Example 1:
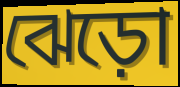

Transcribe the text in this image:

ঝেড়ো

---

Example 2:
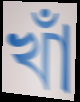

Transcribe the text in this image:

খাঁ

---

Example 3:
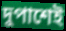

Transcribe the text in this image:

দুপাশেই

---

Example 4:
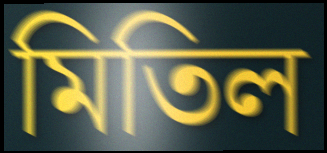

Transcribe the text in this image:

মিতিল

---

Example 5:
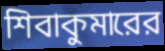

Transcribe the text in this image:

শিবাকুমারের